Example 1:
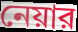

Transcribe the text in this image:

নেয়ার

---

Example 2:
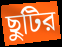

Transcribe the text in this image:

ছুটির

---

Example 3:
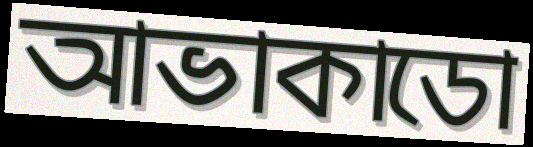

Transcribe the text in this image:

আভাকাডো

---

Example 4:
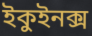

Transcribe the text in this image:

ইকুইনক্স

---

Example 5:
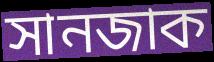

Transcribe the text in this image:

সানজাক